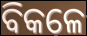
ବିକଳେ